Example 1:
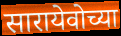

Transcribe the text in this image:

सारायेवोच्या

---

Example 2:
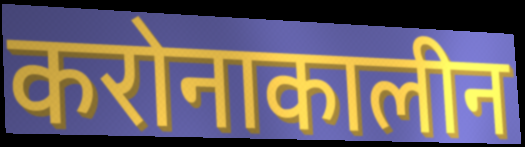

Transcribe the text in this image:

करोनाकालीन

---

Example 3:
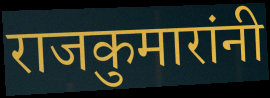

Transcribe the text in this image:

राजकुमारांनी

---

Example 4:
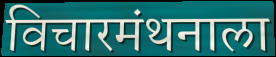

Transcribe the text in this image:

विचारमंथनाला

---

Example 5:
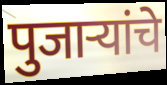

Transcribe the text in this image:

पुजाऱ्यांचे